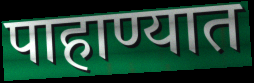
पाहाण्यात